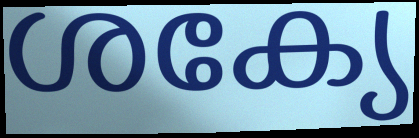
ശക്യേ